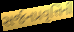
સર્જનપ્રવૃત્તિની